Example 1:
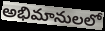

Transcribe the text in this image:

అభిమానులలో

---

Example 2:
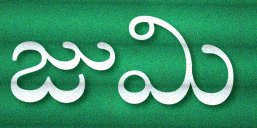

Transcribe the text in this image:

జుమి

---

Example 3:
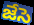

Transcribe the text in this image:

జేసె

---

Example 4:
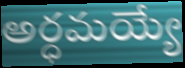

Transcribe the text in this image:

అర్ధమయ్యే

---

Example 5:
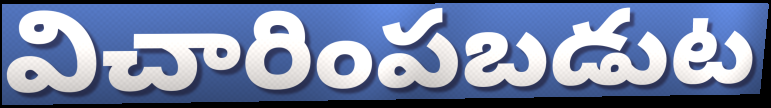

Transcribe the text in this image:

విచారింపబడుట